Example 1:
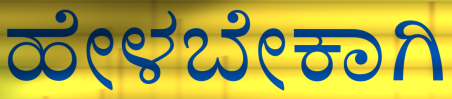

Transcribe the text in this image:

ಹೇಳಬೇಕಾಗಿ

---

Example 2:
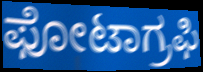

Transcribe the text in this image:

ಫೋಟಾಗ್ರಫಿ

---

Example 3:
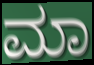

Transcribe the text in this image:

ಮಾ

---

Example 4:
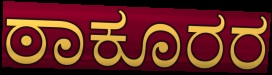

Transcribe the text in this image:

ಠಾಕೂರರ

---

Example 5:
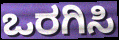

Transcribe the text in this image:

ಒರಗಿಸಿ